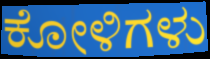
ಕೋಳಿಗಳು